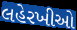
લહેરખીઓ